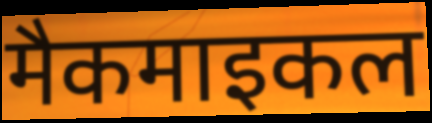
मैकमाइकल